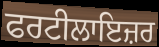
ਫਰਟੀਲਾਇਜ਼ਰ